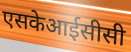
एसकेआईसीसी